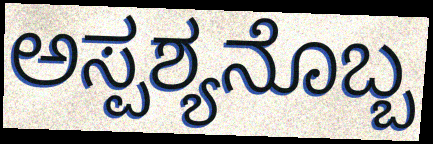
ಅಸ್ಪಶ್ಯನೊಬ್ಬ